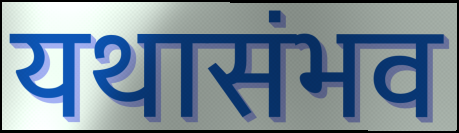
यथासंभव